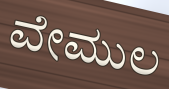
ವೇಮುಲ